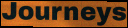
Journeys